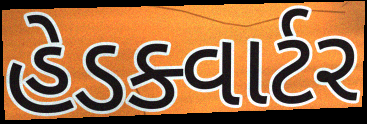
હેડક્વાર્ટર